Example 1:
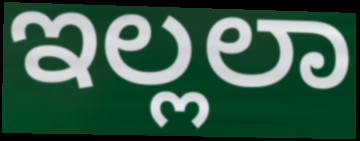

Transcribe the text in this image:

ಇಲ್ಲಲಾ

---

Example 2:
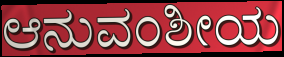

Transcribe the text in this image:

ಆನುವಂಶೀಯ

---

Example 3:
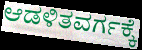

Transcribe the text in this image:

ಆಡಳಿತವರ್ಗಕ್ಕೆ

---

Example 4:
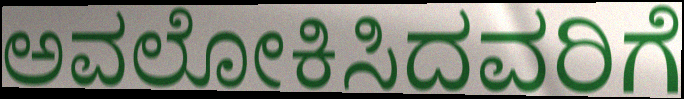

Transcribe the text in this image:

ಅವಲೋಕಿಸಿದವರಿಗೆ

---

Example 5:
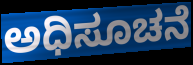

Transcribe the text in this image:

ಅಧಿಸೂಚನೆ